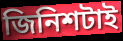
জিনিশটাই